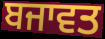
ਬਜਾਵਤ